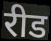
रीड